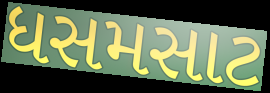
ધસમસાટ